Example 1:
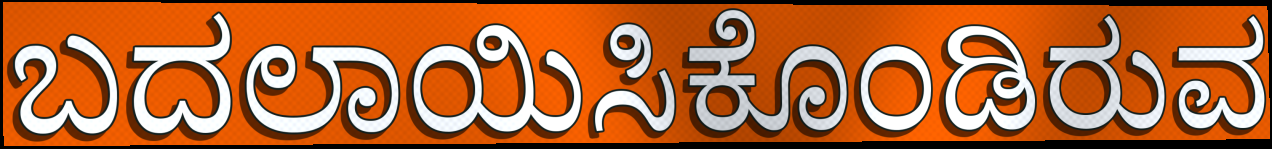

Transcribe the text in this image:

ಬದಲಾಯಿಸಿಕೊಂಡಿರುವ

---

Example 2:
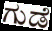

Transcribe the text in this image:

ಗುಡೆ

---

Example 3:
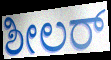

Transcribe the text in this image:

ಶೀಲರ್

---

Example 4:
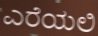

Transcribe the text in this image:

ಎರೆಯಲಿ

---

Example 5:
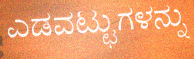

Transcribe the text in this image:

ಎಡವಟ್ಟುಗಳನ್ನು